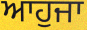
ਆਹੁਜਾ